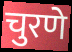
चुरणे